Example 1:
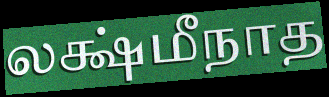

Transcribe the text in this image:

லக்ஷ்மீநாத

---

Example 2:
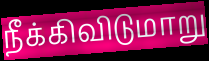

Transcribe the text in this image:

நீக்கிவிடுமாறு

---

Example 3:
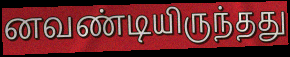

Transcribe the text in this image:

னவண்டியிருந்தது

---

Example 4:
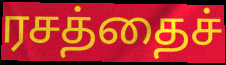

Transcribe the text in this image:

ரசத்தைச்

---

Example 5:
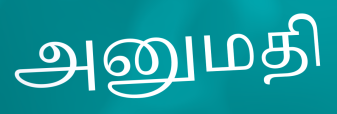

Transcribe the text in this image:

அனுமதி